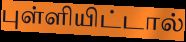
புள்ளியிட்டால்